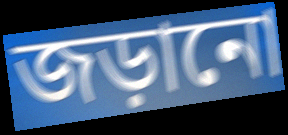
জড়ানো